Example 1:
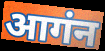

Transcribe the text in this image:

आगंन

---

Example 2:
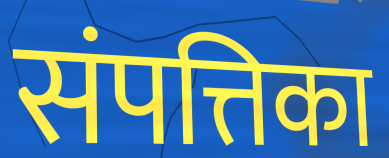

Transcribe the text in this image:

संपत्तिका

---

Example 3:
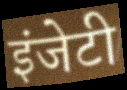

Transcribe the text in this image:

इंजेटी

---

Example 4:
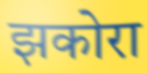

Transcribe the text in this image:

झकोरा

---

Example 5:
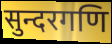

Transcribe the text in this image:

सुन्दरगणि